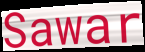
Sawar